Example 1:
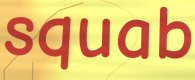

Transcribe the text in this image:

squab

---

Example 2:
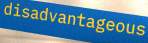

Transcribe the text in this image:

disadvantageous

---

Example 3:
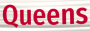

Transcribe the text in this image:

Queens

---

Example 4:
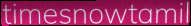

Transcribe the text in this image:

timesnowtamil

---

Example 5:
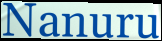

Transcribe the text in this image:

Nanuru